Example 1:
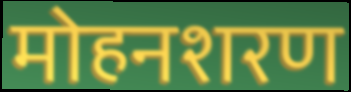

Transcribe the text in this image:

मोहनशरण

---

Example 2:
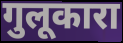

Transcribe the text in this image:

गुलूकारा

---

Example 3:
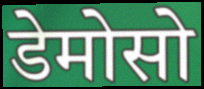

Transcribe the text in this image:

डेमोसो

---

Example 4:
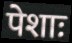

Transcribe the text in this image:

पेशाः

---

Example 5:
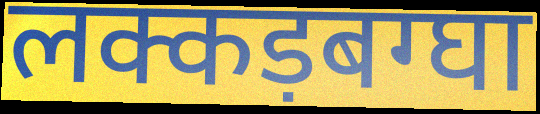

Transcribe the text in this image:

लक्कड़बग्घा